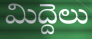
మిద్దెలు